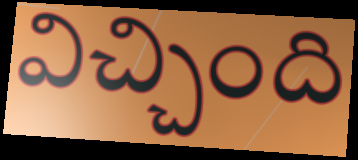
విచ్చింది